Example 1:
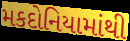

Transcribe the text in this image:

મકદોનિયામાંથી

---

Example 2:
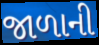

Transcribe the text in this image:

જાળાની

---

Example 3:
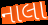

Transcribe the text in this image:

નાલા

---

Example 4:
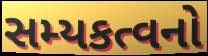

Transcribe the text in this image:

સમ્યકત્વનો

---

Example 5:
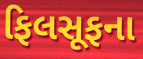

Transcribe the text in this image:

ફિલસૂફના